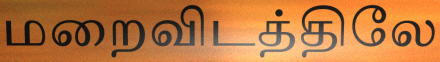
மறைவிடத்திலே